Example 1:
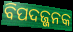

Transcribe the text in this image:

ବିପଦଜ୍ଜନକ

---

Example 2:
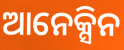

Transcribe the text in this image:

ଆନେକ୍ସିନ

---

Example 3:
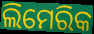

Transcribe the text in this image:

ଲିମେରିକ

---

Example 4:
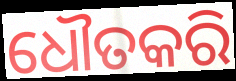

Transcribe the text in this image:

ଧୌତକରି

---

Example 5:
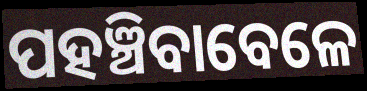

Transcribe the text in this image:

ପହଞ୍ଚିବାବେଳେ